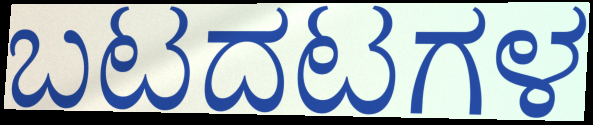
ಬಟದಟಗಳ